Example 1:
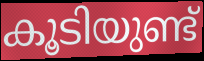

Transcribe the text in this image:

കൂടിയുണ്ട്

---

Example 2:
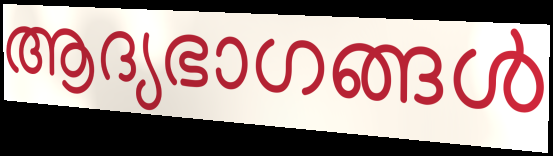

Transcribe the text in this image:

ആദ്യഭാഗങ്ങൾ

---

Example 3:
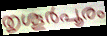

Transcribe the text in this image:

തൃശൂർപൂരം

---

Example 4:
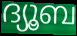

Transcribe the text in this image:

ദ്യൂബ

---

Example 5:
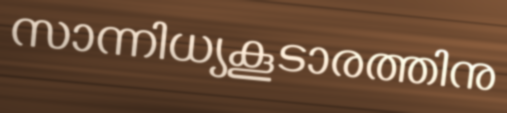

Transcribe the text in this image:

സാന്നിധ്യകൂടാരത്തിനു